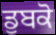
ਡੁਬਕੋ